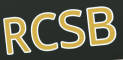
RCSB